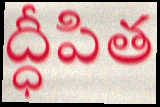
ద్ధీపిత